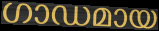
ഗാഡമായ